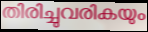
തിരിച്ചുവരികയും